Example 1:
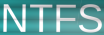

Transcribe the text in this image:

NTFS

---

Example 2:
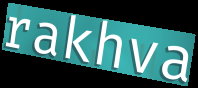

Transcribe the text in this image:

rakhva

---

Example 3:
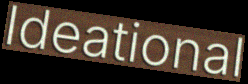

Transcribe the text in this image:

Ideational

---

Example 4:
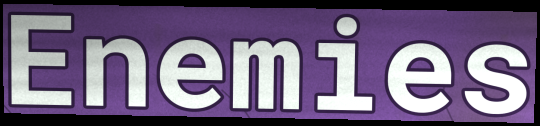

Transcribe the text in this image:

Enemies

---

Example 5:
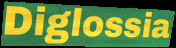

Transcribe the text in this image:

Diglossia